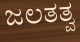
ಜಲತತ್ವ